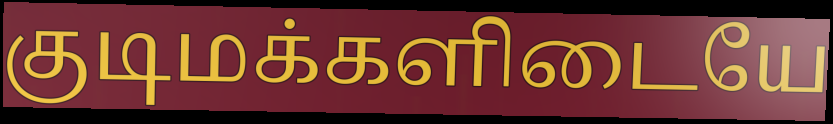
குடிமக்களிடையே